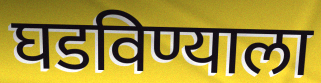
घडविण्याला